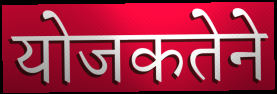
योजकतेने